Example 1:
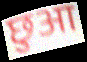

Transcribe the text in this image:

छुआ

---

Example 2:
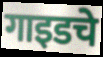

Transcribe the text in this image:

गाइडचे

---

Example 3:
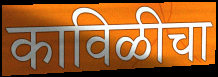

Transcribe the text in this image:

काविळीचा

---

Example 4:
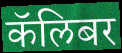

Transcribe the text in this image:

कॅलिबर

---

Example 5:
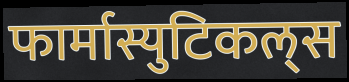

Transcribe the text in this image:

फार्मास्युटिकल्स